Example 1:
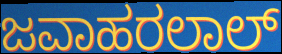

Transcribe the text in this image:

ಜವಾಹರಲಾಲ್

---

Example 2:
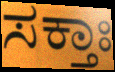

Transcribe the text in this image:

ಸಕ್ತಾಃ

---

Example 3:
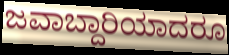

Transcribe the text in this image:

ಜವಾಬ್ದಾರಿಯಾದರೂ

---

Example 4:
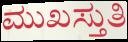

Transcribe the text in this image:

ಮುಖಸ್ತುತಿ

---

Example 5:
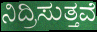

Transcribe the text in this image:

ನಿದ್ರಿಸುತ್ತವೆ